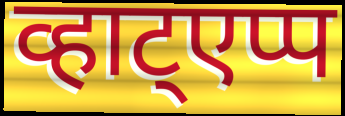
व्हाट्एप्प